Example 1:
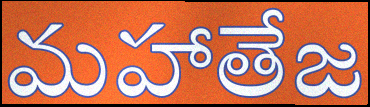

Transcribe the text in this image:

మహాతేజ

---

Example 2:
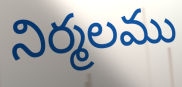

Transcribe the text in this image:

నిర్మలము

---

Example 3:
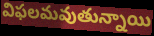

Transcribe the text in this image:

విఫలమవుతున్నాయి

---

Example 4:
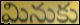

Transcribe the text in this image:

మినుకు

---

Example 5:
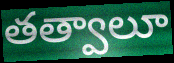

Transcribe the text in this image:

తత్వాలూ